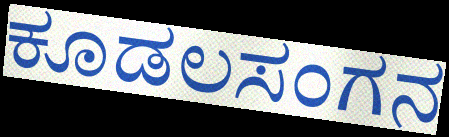
ಕೂಡಲಸಂಗನ